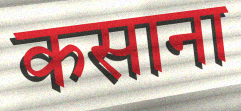
कसाना